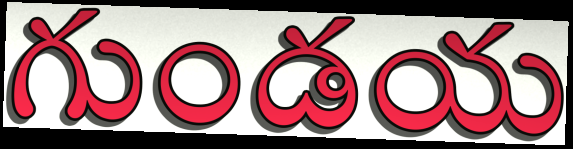
గుండయ